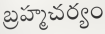
బ్రహ్మచర్యం